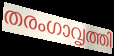
തരംഗാവൃത്തി